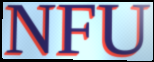
NFU